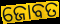
ଜୋବତ